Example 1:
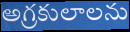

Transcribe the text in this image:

అగ్రకులాలను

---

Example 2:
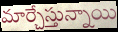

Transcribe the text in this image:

మార్చేస్తున్నాయి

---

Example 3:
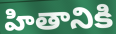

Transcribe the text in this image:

హితానికి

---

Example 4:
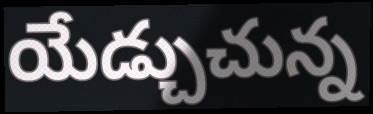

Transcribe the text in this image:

యేడ్చుచున్న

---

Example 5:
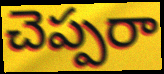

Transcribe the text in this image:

చెప్పరా